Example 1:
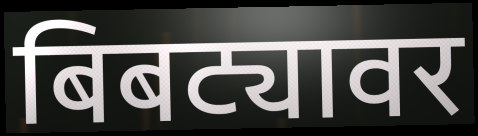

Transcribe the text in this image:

बिबट्यावर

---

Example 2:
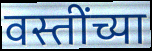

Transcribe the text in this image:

वस्तींच्या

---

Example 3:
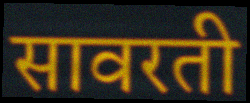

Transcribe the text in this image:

सावरती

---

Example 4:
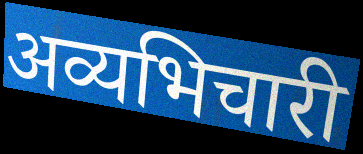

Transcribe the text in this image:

अव्यभिचारी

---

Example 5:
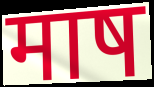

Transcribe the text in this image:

माष